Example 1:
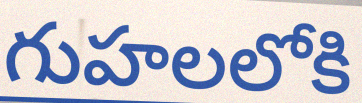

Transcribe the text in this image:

గుహలలోకి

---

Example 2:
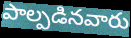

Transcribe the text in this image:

పాల్పడినవారు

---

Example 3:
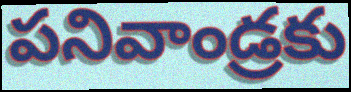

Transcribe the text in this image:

పనివాండ్రకు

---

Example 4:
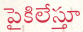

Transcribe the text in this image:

పైకిలేస్తూ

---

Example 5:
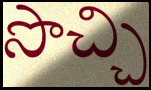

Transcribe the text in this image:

సొచ్చి